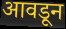
आवडून